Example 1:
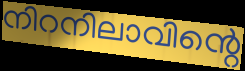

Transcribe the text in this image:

നിറനിലാവിന്റെ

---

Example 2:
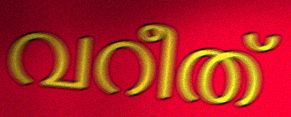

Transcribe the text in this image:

വറീത്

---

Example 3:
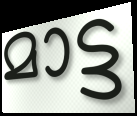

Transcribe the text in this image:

മാട്ട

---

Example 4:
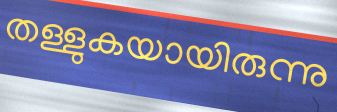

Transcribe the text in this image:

തള്ളുകയായിരുന്നു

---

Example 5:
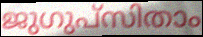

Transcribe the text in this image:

ജുഗുപ്സിതാം